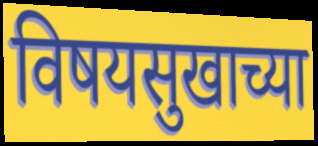
विषयसुखाच्या